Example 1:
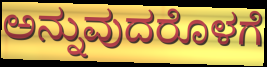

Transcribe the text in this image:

ಅನ್ನುವುದರೊಳಗೆ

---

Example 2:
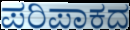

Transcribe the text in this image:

ಪರಿಪಾಕದ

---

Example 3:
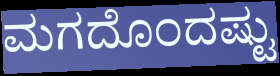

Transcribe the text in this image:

ಮಗದೊಂದಷ್ಟು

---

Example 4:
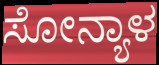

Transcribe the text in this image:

ಸೋನ್ಯಾಳ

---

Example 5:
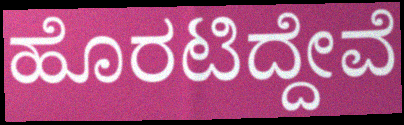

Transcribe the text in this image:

ಹೊರಟಿದ್ದೇವೆ